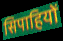
सिपाहियों